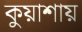
কুয়াশায়